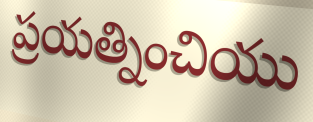
ప్రయత్నించియు